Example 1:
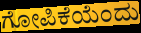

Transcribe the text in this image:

ಗೋಪಿಕೆಯೆಂದು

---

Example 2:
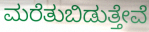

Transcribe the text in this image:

ಮರೆತುಬಿಡುತ್ತೇವೆ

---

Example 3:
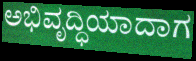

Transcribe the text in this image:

ಅಭಿವೃದ್ಧಿಯಾದಾಗ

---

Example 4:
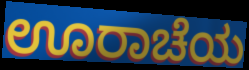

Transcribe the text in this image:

ಊರಾಚೆಯ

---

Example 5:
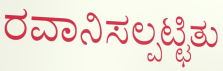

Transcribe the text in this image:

ರವಾನಿಸಲ್ಪಟ್ಟಿತು